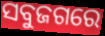
ସବୁଜଗରେ